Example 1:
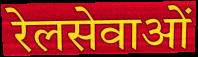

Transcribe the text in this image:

रेलसेवाओं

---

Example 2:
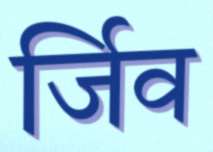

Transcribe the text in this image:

र्जिव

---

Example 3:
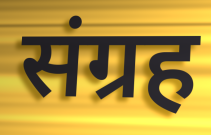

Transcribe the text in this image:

संग्रह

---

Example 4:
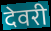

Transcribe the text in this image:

देवरी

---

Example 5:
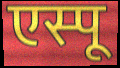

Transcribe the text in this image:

एस्पू